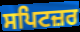
ਸਪਿਟਜ਼ਰ